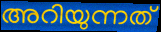
അറിയുന്നത്